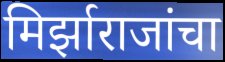
मिर्झाराजांचा